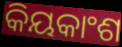
କିୟକାଂଶ